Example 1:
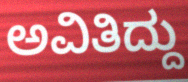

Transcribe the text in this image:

ಅವಿತಿದ್ದು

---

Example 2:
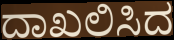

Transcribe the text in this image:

ದಾಖಲಿಸಿದ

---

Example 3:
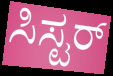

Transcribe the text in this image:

ಸಿಸ್ಟರ್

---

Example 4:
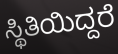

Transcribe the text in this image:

ಸ್ಥಿತಿಯಿದ್ದರೆ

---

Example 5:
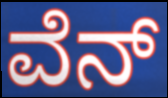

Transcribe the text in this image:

ವೆನ್